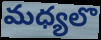
మధ్యలొ